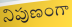
నిపుణంగా